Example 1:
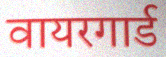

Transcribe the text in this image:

वायरगार्ड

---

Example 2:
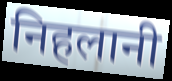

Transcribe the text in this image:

निहलानी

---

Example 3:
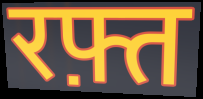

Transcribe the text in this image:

रफ़्त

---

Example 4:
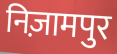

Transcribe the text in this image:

निज़ामपुर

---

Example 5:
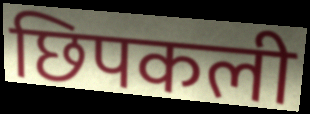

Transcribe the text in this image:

छिपकली